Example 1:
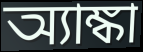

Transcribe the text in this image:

অ্যাঙ্কা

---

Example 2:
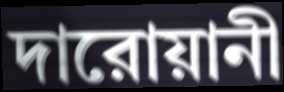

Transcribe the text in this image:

দারোয়ানী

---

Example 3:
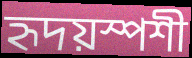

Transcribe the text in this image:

হৃদয়স্পশী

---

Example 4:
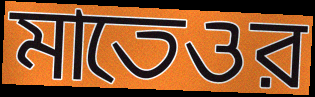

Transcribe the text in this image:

মাতেওর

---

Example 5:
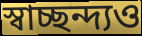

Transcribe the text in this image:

স্বাচ্ছন্দ্যও